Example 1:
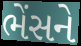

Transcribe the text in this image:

ભેંસને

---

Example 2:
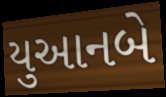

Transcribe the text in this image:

યુઆનબે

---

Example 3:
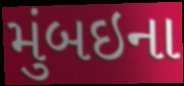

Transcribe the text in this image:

મુંબઇના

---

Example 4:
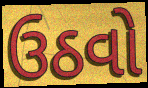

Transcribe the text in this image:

ઉઠવો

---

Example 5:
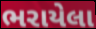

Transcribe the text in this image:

ભરાયેલા